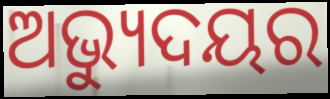
ଅଭ୍ୟୁଦୟର